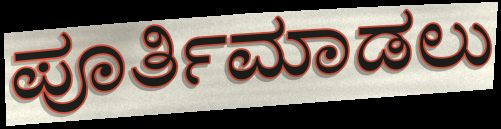
ಪೂರ್ತಿಮಾಡಲು